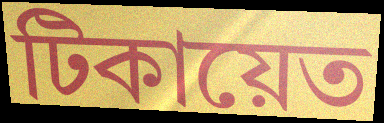
টিকায়েত